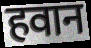
हवान